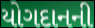
યોગદાનની